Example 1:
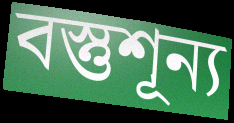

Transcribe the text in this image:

বস্তুশূন্য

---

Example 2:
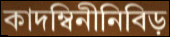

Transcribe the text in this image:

কাদম্বিনীনিবিড়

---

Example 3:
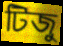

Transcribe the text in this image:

টিজু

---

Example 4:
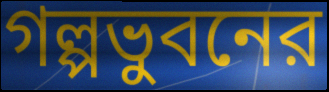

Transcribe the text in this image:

গল্পভুবনের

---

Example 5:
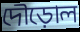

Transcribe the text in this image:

দৌড়োল